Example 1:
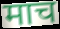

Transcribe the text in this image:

माच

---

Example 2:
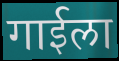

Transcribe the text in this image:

गाईला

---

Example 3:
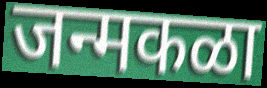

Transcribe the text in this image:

जन्मकळा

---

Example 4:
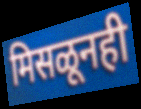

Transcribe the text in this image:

मिसळूनही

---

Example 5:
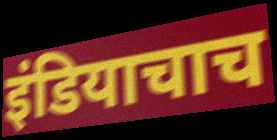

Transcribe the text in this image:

इंडियाचाच